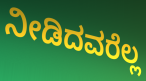
ನೀಡಿದವರೆಲ್ಲ